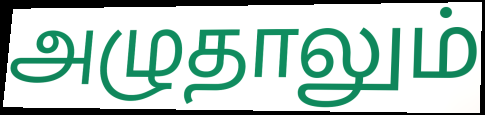
அழுதாலும்